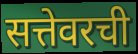
सत्तेवरची